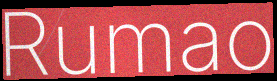
Rumao